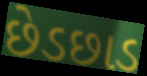
છેડછાડ